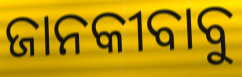
ଜାନକୀବାବୁ